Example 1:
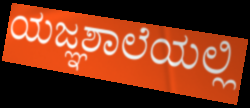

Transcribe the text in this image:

ಯಜ್ಞಶಾಲೆಯಲ್ಲಿ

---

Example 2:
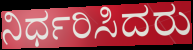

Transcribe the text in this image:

ನಿರ್ಧರಿಸಿದರು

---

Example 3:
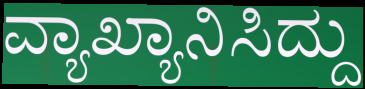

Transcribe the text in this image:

ವ್ಯಾಖ್ಯಾನಿಸಿದ್ದು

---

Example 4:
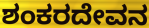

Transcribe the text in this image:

ಶಂಕರದೇವನ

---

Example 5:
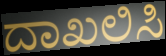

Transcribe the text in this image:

ದಾಖಲಿಸಿ